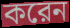
করেন